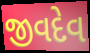
જીવદેવ